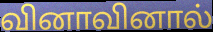
வினாவினால்